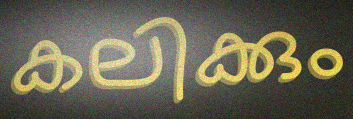
കലിക്കും